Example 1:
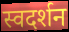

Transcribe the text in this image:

स्वदर्शन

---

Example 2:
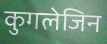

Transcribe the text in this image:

कुगलेजिन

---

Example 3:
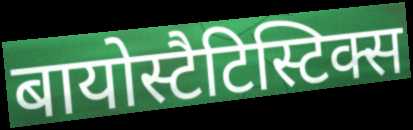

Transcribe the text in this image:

बायोस्टैटिस्टिक्स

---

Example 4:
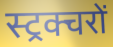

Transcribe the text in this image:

स्ट्रक्चरों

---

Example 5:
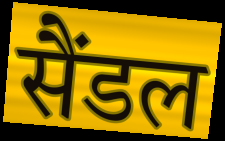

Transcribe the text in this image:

सैंडल